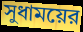
সুধাময়ের